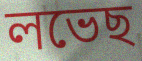
লভেছ